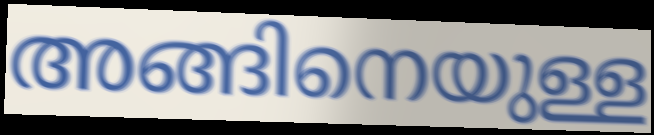
അങ്ങിനെയുള്ള